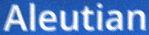
Aleutian